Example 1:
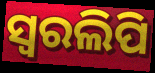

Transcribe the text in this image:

ସ୍ଵରଲିପି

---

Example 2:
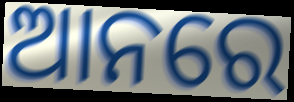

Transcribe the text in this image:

ଆନରେ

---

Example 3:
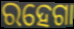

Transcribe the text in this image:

ରହେଗା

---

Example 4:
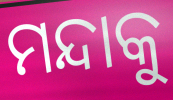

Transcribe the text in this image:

ମନ୍ଦାକୁ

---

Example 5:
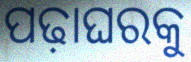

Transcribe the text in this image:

ପଢ଼ାଘରକୁ